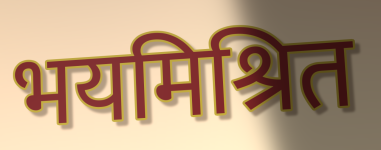
भयमिश्रित